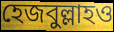
হেজবুল্লাহও